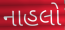
નાહલો